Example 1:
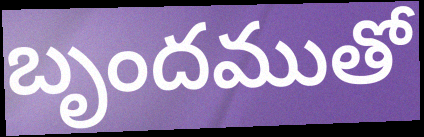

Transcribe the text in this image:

బృందముతో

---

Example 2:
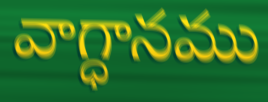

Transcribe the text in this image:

వాగ్ధానము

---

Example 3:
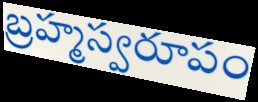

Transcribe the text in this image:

బ్రహ్మస్వరూపం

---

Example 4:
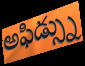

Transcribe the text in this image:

అఫిడ్స్ను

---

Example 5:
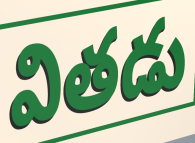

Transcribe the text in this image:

వితడు